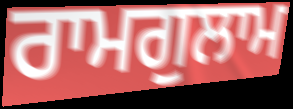
ਰਾਮਗੁਲਾਮ